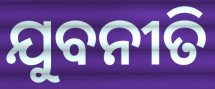
ଯୁବନୀତି